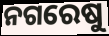
ନଗରେଷୁ